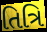
તિત્રિ